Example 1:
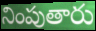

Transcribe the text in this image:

నింపుతారు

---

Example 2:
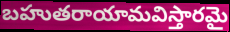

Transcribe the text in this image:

బహుతరాయామవిస్తారమై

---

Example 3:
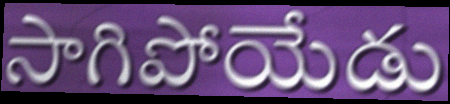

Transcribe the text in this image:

సాగిపోయేడు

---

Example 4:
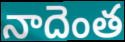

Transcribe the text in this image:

నాదెంత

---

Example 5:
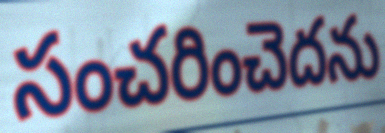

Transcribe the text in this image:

సంచరించెదను